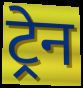
ट्रेन